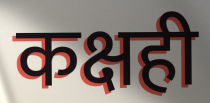
कक्षही